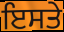
ਇਸਤੇ